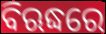
ବିଋଦ୍ଧରେ